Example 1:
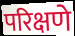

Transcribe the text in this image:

परिक्षणे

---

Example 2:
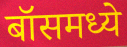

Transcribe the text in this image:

बॉसमध्ये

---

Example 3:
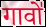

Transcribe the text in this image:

गावो॑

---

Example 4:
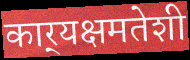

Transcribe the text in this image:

कार्यक्षमतेशी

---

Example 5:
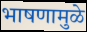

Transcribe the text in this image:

भाषणामुळे